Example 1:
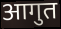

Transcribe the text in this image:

आगुत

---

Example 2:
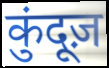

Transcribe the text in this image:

कुंदूज़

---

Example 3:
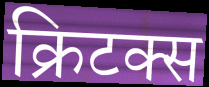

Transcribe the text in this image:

क्रिटक्स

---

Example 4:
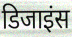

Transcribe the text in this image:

डिजाइंस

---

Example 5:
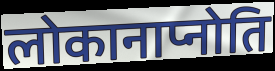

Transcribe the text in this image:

लोकानाप्नोति